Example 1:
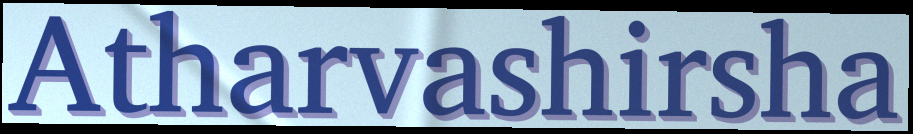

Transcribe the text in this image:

Atharvashirsha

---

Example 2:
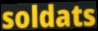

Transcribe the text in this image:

soldats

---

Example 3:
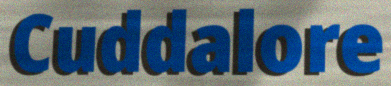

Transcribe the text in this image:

Cuddalore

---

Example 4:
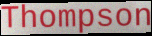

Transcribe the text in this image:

Thompson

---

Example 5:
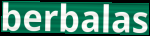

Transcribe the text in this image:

berbalas